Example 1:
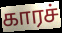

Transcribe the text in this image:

காரச்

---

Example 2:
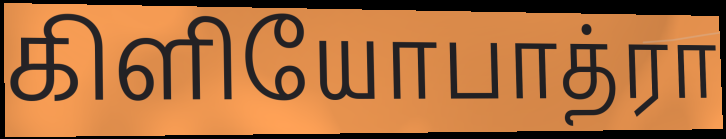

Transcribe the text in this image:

கிளியோபாத்ரா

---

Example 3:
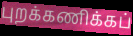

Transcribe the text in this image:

புறக்கணிக்கப்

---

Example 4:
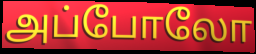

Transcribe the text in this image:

அப்போலோ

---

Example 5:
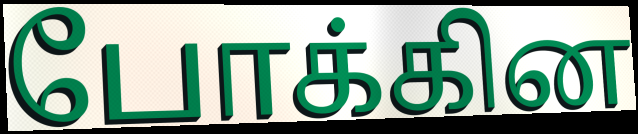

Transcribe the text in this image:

போக்கின